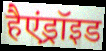
हैएंड्रॉइड